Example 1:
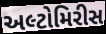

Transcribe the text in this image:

અલ્ટોમિરીસ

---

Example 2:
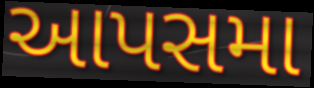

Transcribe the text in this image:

આપસમા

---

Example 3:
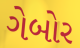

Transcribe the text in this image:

ગેબોર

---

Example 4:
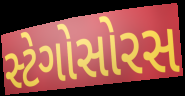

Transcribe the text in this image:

સ્ટેગોસોરસ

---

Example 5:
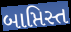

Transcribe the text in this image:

બાપ્તિસ્ત